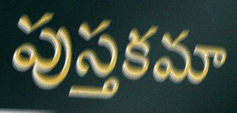
పుస్తకమా